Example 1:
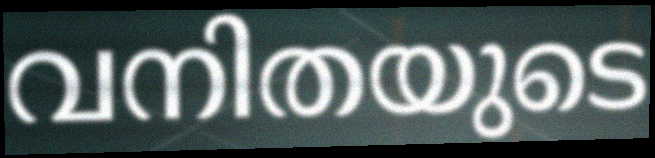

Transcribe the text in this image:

വനിതയുടെ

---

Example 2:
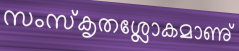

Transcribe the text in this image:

സംസ്കൃതശ്ലോകമാണു്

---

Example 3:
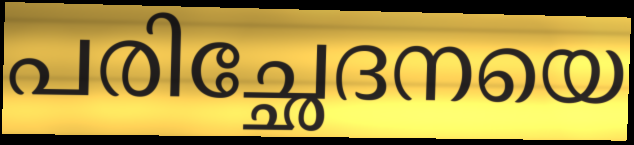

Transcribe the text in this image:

പരിച്ഛേദനയെ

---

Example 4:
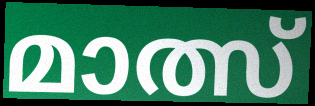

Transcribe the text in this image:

മാത്സ്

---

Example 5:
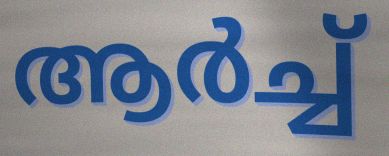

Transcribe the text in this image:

ആർച്ച്